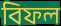
বিফল